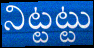
నిట్టట్టు